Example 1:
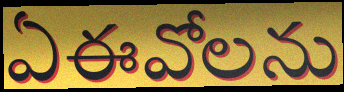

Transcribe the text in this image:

ఏఈవోలను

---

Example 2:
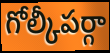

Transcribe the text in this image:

గోల్కీపర్గా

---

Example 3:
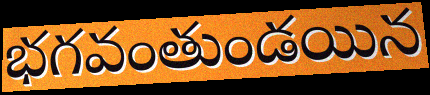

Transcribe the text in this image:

భగవంతుండయిన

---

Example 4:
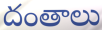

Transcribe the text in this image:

దంతాలు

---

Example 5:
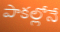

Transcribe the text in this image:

పాకల్లోనే